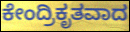
ಕೇಂದ್ರಿಕೃತವಾದ